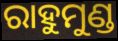
ରାହୁମୁଣ୍ଡ